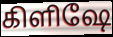
கிளிஷே